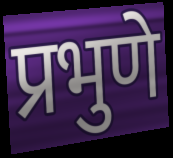
प्रभुणे